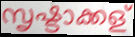
സൃഷ്ടാക്കള്